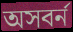
অসবর্ন